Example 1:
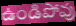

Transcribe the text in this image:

ఉండిపోవు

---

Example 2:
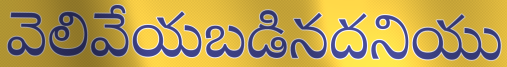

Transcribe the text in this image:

వెలివేయబడినదనియు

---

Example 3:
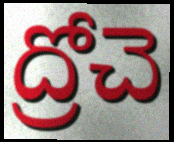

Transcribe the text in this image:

ద్రోచె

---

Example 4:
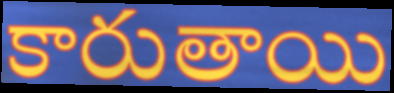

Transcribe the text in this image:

కారుతాయి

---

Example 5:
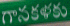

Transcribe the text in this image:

గానకళకు